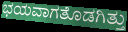
ಭಯವಾಗತೊಡಗಿತ್ತು